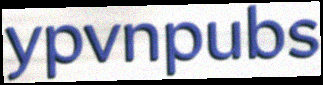
ypvnpubs